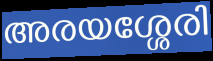
അരയശ്ശേരി